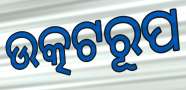
ଉତ୍କଟରୂପ